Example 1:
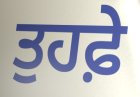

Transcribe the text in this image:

ਤੁਹਫ਼ੇ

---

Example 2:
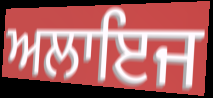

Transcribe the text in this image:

ਅਲਾਇਜ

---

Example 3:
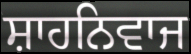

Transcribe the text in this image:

ਸ਼ਾਹਨਿਵਾਜ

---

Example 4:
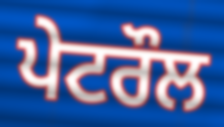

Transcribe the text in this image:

ਪੇਟਰੌਲ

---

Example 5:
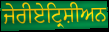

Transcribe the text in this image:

ਜੇਰੀਏਟ੍ਰਿਸ਼ੀਅਨ